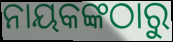
ନାୟକଙ୍କଠାରୁ